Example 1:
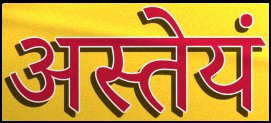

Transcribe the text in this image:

अस्तेयं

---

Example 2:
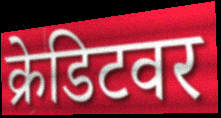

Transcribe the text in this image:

क्रेडिटवर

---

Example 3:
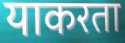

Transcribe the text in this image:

याकरता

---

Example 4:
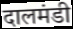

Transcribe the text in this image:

दालमंडी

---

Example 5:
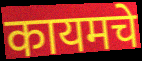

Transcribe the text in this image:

कायमचे